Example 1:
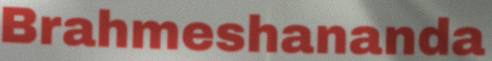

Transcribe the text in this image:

Brahmeshananda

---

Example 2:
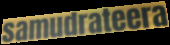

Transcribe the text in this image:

samudrateera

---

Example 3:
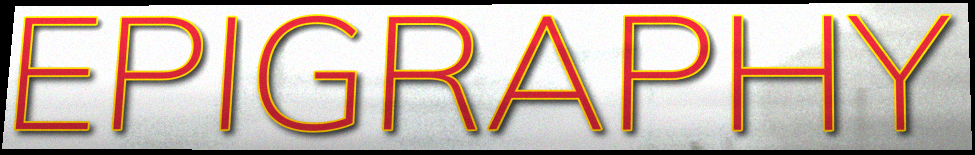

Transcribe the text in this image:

EPIGRAPHY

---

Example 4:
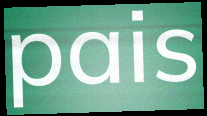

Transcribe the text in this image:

pais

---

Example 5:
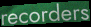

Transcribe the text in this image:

recorders